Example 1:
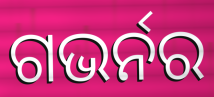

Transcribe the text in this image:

ଗଭର୍ନର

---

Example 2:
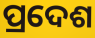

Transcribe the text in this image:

ପ୍ରଦେଶ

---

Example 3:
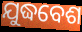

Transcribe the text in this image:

ଯୁଦ୍ଧବେଶ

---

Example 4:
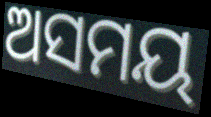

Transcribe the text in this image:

ଅସମୟ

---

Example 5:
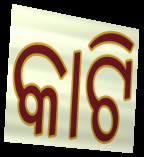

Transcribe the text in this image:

କାଟି